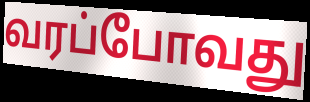
வரப்போவது